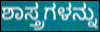
ಶಾಸ್ತ್ರಗಳನ್ನು